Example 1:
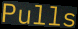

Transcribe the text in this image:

Pulls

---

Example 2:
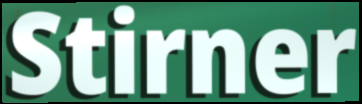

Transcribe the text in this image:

Stirner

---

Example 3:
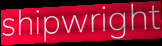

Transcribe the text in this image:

shipwright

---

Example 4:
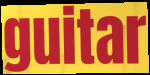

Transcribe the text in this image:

guitar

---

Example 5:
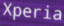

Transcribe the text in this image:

Xperia